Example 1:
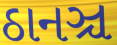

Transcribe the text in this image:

ઠાનઞ્ચ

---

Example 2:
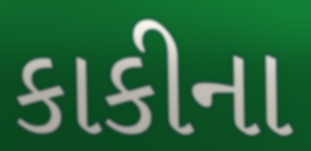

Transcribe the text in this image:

કાકીના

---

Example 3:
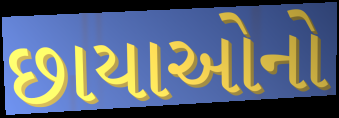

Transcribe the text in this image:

છાયાઓનો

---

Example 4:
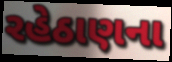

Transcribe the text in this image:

રહેઠાણના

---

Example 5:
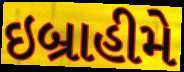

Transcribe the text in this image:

ઇબ્રાહીમે